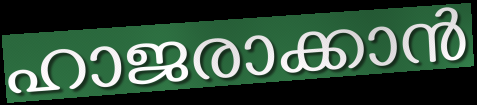
ഹാജരാക്കാൻ